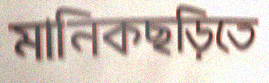
মানিকছড়িতে